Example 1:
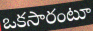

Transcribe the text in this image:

ఒకసారంటూ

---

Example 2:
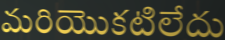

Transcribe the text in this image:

మరియొకటిలేదు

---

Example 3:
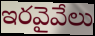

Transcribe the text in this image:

ఇరవైవేలు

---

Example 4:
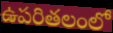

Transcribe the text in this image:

ఉపరితలంలో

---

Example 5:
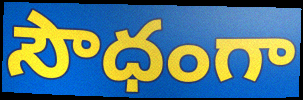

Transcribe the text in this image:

సౌధంగా